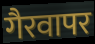
गैरवापर